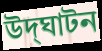
উদ্‌ঘাটন